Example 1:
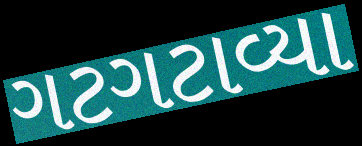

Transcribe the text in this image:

ગટગટાવ્યા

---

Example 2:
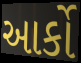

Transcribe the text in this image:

આર્કો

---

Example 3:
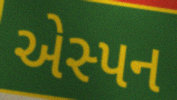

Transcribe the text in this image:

એસ્પન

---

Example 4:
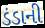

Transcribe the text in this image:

ડંડાની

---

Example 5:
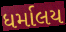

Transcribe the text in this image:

ધર્માલય